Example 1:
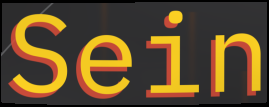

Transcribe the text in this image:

Sein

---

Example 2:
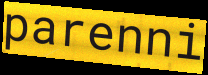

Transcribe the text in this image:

parenni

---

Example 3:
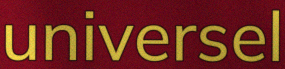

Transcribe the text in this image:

universel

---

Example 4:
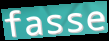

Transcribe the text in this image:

fasse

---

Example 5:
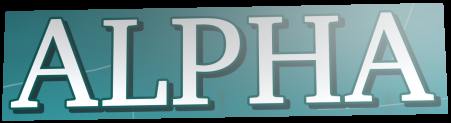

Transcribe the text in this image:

ALPHA